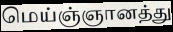
மெய்ஞ்ஞானத்து